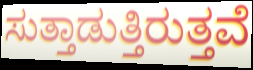
ಸುತ್ತಾಡುತ್ತಿರುತ್ತವೆ